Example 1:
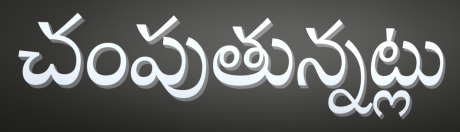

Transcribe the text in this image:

చంపుతున్నట్లు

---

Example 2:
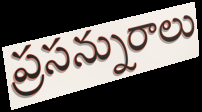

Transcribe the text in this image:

ప్రసన్నురాలు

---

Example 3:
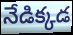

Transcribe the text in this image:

నేడిక్కడ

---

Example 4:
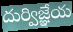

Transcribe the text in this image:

దుర్విజ్ఞేయ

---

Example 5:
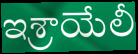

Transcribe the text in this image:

ఇశ్రాయేలీ